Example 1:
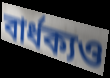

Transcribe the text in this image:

বার্ধক্যও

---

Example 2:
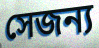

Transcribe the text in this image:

সেজন্য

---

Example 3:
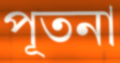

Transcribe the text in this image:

পূতনা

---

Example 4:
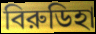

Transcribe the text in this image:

বিরুডিহা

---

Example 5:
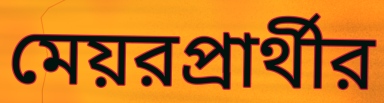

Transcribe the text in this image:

মেয়রপ্রার্থীর